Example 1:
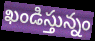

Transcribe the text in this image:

ఖండిస్తున్నం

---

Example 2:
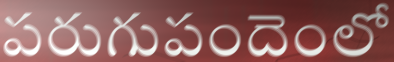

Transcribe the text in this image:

పరుగుపందెంలో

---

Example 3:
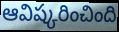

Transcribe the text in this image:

ఆవిష్కరించింది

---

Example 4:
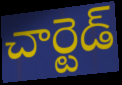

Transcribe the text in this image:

చార్టెడ్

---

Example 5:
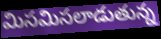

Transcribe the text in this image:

మిసమిసలాడుతున్న